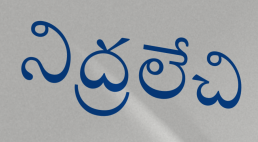
నిద్రలేచి